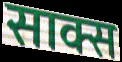
साक्स